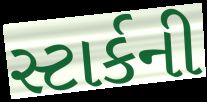
સ્ટાર્કની